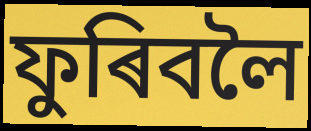
ফুৰিবলৈ